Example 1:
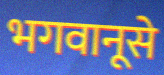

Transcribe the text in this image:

भगवानूसे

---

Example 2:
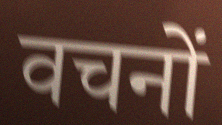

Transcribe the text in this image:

वचनों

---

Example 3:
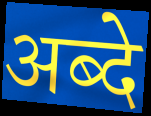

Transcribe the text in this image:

अब्दे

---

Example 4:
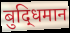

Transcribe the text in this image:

बुद्धिमान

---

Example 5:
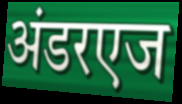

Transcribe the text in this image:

अंडरएज